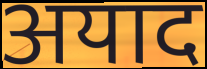
अयाद